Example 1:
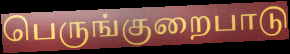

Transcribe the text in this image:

பெருங்குறைபாடு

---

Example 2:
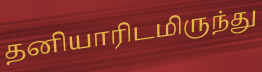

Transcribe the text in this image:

தனியாரிடமிருந்து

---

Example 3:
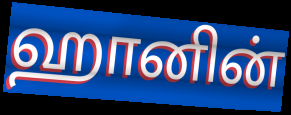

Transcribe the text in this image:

ஹானின்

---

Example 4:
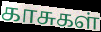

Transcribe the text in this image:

காசுகள்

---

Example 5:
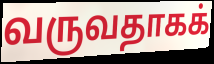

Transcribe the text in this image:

வருவதாகக்